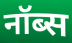
नॉब्स